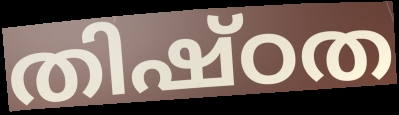
തിഷ്ഠത